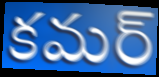
కమర్